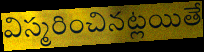
విస్మరించినట్లయితే